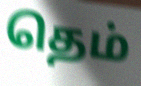
தெம்